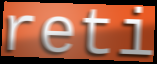
reti